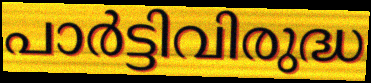
പാർട്ടിവിരുദ്ധ